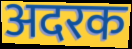
अदरक